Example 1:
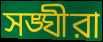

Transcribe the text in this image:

সঙ্ঘীরা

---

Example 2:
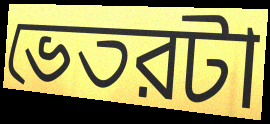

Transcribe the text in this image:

ভেতরটা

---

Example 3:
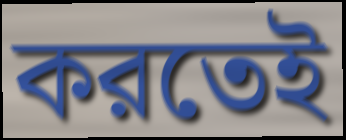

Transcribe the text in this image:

করতেই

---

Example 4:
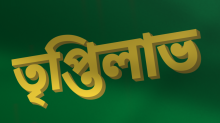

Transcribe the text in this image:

তৃপ্তিলাভ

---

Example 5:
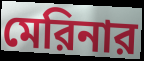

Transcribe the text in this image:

মেরিনার